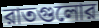
রাতগুলোর